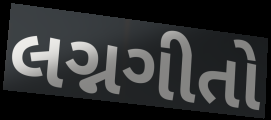
લગ્નગીતો